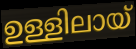
ഉള്ളിലായ്